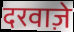
दरवाज़े